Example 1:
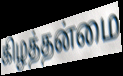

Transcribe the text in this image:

கிழத்தன்மை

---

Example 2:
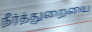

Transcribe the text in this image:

நீர்த்துறையை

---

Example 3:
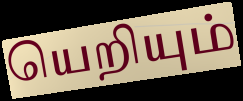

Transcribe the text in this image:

யெறியும்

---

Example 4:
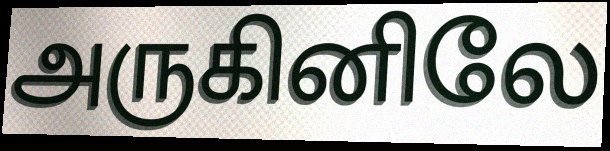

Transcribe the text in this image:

அருகினிலே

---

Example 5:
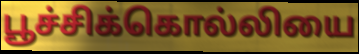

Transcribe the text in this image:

பூச்சிக்கொல்லியை